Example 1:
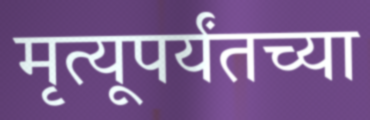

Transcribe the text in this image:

मृत्यूपर्यंतच्या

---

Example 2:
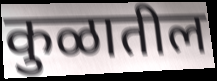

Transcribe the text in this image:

कुळातील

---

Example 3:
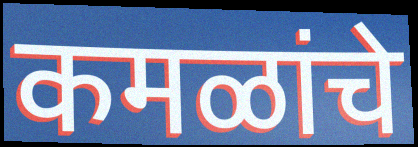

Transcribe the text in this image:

कमळांचे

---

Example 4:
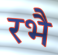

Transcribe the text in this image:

रभै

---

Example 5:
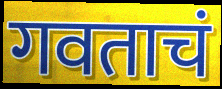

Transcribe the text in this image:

गवताचं